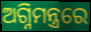
ଅଗ୍ନିମନ୍ତ୍ରରେ